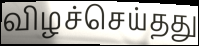
விழச்செய்தது